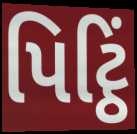
પિટ્ઠિં